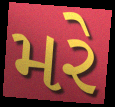
મરે